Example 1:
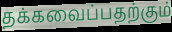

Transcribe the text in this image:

தக்கவைப்பதற்கும்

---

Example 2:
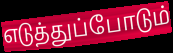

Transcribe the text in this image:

எடுத்துப்போடும்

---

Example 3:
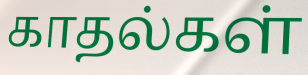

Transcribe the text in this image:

காதல்கள்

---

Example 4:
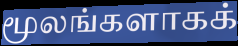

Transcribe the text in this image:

மூலங்களாகக்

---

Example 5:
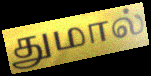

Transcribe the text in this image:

துமால்